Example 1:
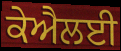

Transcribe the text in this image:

ਕੇਐਲਈ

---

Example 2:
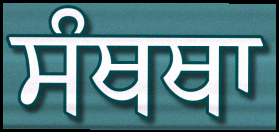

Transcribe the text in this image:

ਸੰਥਥਾ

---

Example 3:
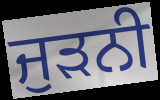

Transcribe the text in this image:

ਜੁੜਨੀ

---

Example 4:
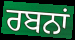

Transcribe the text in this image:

ਰਬਨਾਂ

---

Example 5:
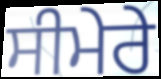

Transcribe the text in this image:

ਸੀਮੇਰੇ